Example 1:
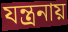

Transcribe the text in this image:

যন্ত্রনায়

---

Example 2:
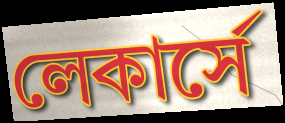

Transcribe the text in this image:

লেকার্সে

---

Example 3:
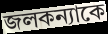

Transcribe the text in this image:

জলকন্যাকে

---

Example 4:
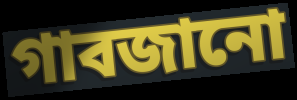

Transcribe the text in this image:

গাবজানো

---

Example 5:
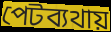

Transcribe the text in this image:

পেটব্যথায়